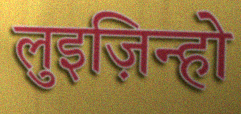
लुइज़िन्हो